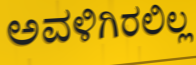
ಅವಳಿಗಿರಲಿಲ್ಲ